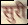
सुरी